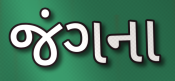
જંગના